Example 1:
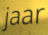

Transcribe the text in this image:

jaar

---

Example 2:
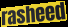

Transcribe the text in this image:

rasheed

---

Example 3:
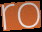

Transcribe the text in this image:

ro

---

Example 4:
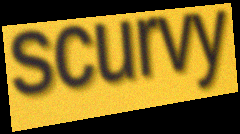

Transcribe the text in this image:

scurvy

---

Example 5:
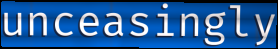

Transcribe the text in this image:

unceasingly